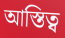
আস্তিত্ব